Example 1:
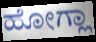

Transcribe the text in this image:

ಹೋಗ್ಲಾ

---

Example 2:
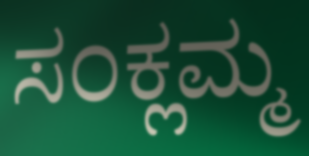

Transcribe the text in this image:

ಸಂಕ್ಲಮ್ಮ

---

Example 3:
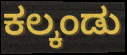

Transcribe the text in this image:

ಕಲ್ಕಂಡು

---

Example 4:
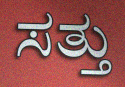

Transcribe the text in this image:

ಸತ್ತು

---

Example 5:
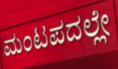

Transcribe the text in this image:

ಮಂಟಪದಲ್ಲೇ